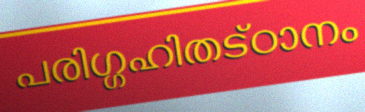
പരിഗ്ഗഹിതട്ഠാനം